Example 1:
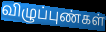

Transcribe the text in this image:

விழுப்புண்கள்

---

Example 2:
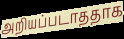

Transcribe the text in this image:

அறியப்படாததாக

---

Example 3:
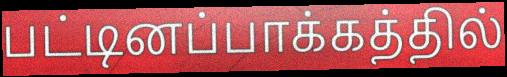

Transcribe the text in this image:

பட்டினப்பாக்கத்தில்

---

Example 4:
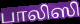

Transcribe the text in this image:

பாலிஸி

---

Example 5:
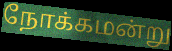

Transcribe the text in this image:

நோக்கமன்று